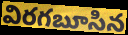
విరగబూసిన